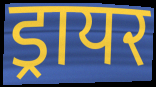
ड्रायर